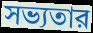
সভ্যতার